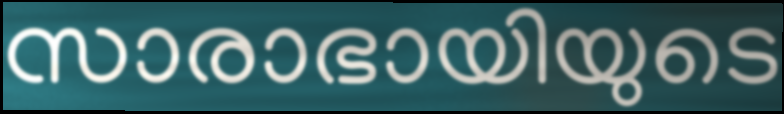
സാരാഭായിയുടെ